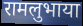
रामलुभाया